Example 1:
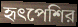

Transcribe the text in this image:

হৃৎপেশির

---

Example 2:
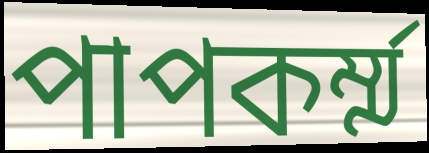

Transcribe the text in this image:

পাপকর্ম্ম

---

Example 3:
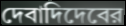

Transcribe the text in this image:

দেবাদিদেবের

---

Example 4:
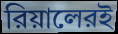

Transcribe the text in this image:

রিয়ালেরই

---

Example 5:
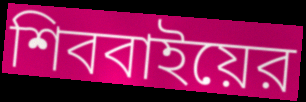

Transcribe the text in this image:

শিববাইয়ের